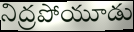
నిద్రపోయూడు